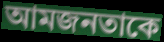
আমজনতাকে